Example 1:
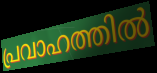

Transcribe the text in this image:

പ്രവാഹത്തിൽ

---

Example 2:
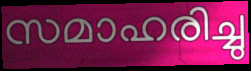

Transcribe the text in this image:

സമാഹരിച്ചു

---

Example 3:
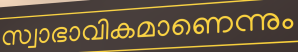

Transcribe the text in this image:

സ്വാഭാവികമാണെന്നും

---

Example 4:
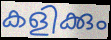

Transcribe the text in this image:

കളിക്കും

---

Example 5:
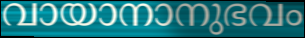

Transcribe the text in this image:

വായാനാനുഭവം